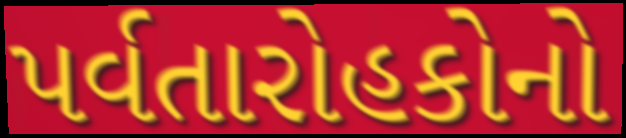
પર્વતારોહકોનો